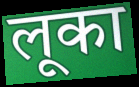
लूका